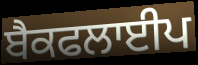
ਬੈਕਫਲਾਈਪ